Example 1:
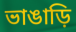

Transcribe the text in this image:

ভাঙাড়ি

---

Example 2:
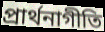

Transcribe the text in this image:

প্রার্থনাগীতি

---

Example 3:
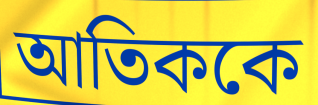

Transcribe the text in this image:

আতিককে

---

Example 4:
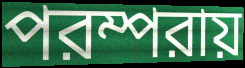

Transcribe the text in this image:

পরম্পরায়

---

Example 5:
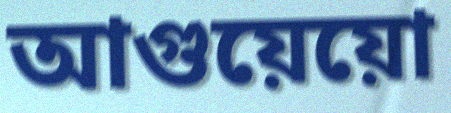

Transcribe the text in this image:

আগুয়েয়ো